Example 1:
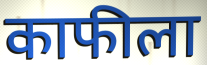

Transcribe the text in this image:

काफीला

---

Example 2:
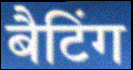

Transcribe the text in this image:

बैटिंग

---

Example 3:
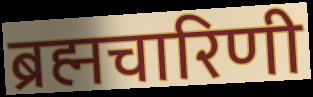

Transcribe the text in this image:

ब्रह्मचारिणी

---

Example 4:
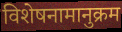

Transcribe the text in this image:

विशेषनामानुक्रम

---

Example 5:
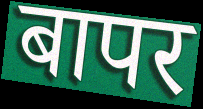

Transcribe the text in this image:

बापर